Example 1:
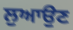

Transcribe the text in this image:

ਲੁਆਉਣ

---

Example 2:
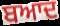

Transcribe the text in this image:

ਬਆਦ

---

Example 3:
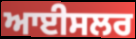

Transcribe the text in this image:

ਆਈਸਲਰ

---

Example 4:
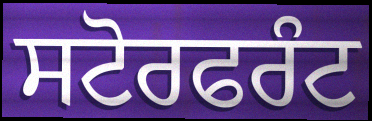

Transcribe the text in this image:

ਸਟੋਰਫਰੰਟ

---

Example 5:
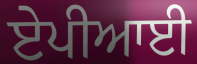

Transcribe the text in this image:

ਏਪੀਆਈ